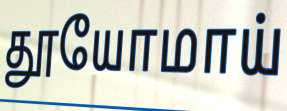
தூயோமாய்